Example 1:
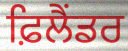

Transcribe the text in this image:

ਫ਼ਿਲੈਂਡਰ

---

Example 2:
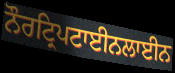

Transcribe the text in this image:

ਨੌਰਟ੍ਰਿਪਟਾਈਨਲਾਈਨ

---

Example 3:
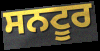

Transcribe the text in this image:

ਸਨਟੂਰ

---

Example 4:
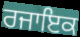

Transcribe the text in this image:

ਰਜਾਇਕ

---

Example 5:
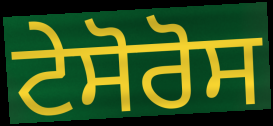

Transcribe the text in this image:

ਟੇਸੋਰੋਸ